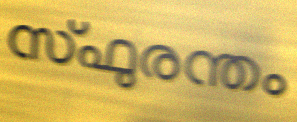
സ്ഫുരന്തം